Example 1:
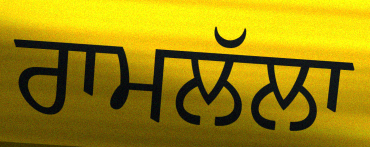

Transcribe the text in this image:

ਰਾਮਲੱਲਾ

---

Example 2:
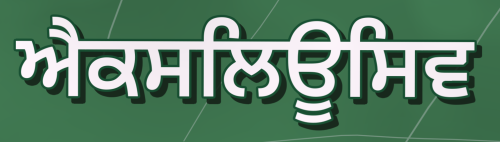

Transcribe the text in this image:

ਐਕਸਲਿਊਸਿਵ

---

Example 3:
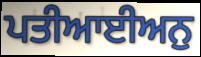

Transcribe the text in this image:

ਪਤੀਆਈਅਨੁ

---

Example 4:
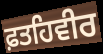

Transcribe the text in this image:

ਫ਼ਤਹਿਵੀਰ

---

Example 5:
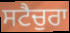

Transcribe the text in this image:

ਸਟੈਚੁਰਾ